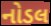
નોડલ